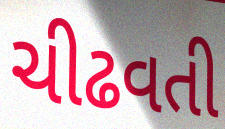
ચીઢવતી